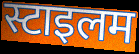
स्टाइलम